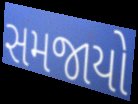
સમજાયો